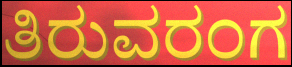
ತಿರುವರಂಗ